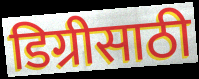
डिग्रीसाठी